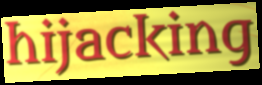
hijacking